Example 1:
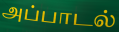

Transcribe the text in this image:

அப்பாடல்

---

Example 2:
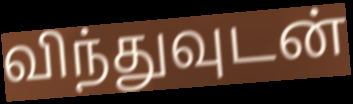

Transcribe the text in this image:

விந்துவுடன்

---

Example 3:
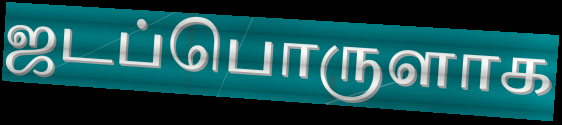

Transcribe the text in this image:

ஜடப்பொருளாக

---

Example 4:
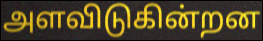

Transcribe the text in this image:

அளவிடுகின்றன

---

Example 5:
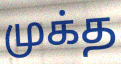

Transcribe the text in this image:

முக்த